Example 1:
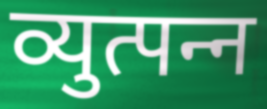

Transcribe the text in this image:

व्युत्पन्न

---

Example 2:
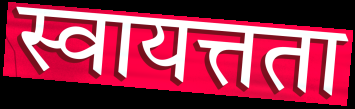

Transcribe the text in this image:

स्वायत्तता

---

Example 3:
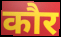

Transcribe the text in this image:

कौर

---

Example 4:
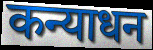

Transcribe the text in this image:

कन्याधन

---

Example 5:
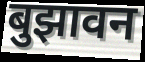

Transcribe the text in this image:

बुझावन